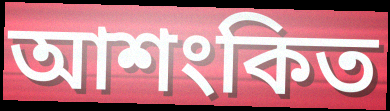
আশংকিত